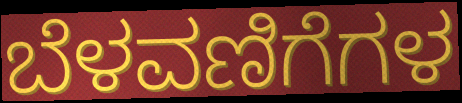
ಬೆಳವಣಿಗೆಗಳ